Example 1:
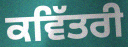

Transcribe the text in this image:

ਕਵਿੱਤਰੀ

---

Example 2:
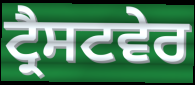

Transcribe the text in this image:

ਟ੍ਰੈਸਟਵੇਰ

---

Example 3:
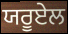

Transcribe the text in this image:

ਯਰੂਏਲ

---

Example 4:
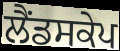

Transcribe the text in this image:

ਲੈਂਡਸਕੇਪ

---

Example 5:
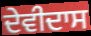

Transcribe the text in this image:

ਦੇਵੀਦਾਸ